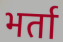
भर्ता